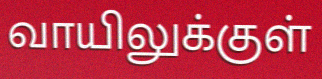
வாயிலுக்குள்